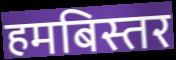
हमबिस्तर